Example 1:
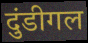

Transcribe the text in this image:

दुंडीगल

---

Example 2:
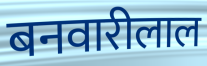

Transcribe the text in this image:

बनवारीलाल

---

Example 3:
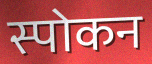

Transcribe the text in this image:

स्पोकन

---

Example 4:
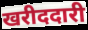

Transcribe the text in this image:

खरीददारी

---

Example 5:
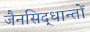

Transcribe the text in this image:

जैनसिद्धान्तों